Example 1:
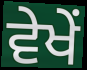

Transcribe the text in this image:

ਵੇਖੇਂ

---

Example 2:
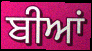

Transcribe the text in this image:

ਬੀਆਂ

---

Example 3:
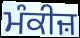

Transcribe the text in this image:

ਮੰਕੀਜ਼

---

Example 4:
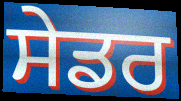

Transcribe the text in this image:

ਸੇਡਰ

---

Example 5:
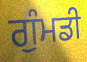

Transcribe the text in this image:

ਗੁੰਮਡੀ